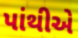
પાંથીએ